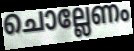
ചൊല്ലേണം